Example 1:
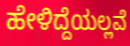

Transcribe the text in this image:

ಹೇಳಿದ್ದೆಯಲ್ಲವೆ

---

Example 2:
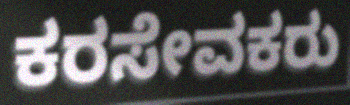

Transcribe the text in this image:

ಕರಸೇವಕರು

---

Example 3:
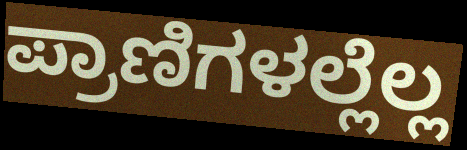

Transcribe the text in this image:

ಪ್ರಾಣಿಗಳಲ್ಲೆಲ್ಲ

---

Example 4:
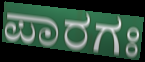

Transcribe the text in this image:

ಪಾರಗಃ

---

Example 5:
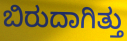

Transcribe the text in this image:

ಬಿರುದಾಗಿತ್ತು